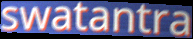
swatantra